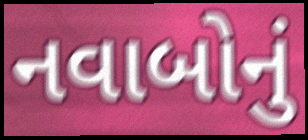
નવાબોનું